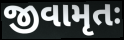
જીવામૃતઃ